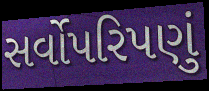
સર્વોપરિપણું